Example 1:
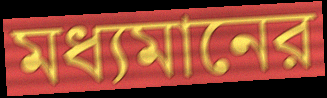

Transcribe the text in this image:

মধ্যমানের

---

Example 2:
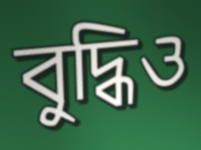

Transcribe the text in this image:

বুদ্ধিও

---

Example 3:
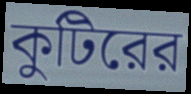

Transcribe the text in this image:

কুটিরের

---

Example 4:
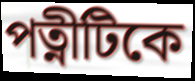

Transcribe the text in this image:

পত্নীটিকে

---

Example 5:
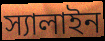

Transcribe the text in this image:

স্যালাইন